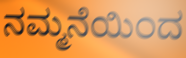
ನಮ್ಮನೆಯಿಂದ